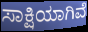
ಸಾಕ್ಷಿಯಾಗಿವೆ